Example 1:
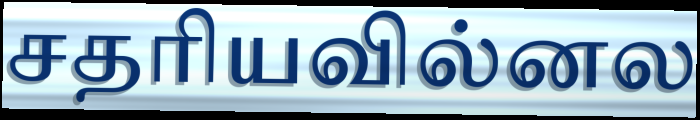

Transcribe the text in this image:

சதரியவில்னல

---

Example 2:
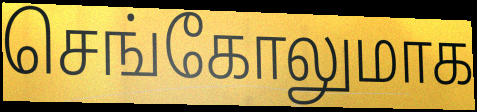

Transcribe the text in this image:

செங்கோலுமாக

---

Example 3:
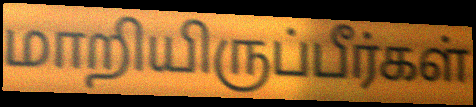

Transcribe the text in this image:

மாறியிருப்பீர்கள்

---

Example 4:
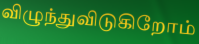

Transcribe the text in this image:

விழுந்துவிடுகிறோம்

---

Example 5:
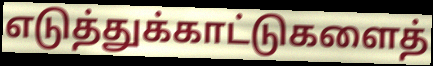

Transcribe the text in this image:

எடுத்துக்காட்டுகளைத்